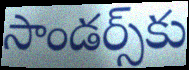
సాండర్స్‌కు